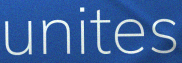
unites